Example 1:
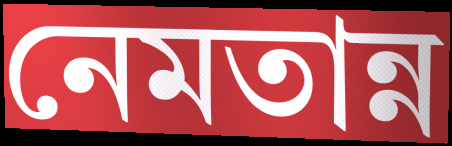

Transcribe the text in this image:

নেমতান্ন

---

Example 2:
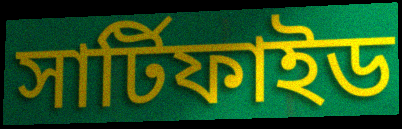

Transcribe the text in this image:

সার্টিফাইড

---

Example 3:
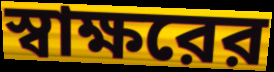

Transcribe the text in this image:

স্বাক্ষরের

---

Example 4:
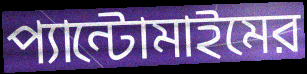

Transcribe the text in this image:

প্যান্টোমাইমের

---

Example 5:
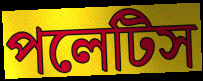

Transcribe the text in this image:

পলেটিস